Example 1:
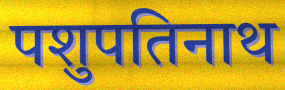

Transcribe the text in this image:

पशुपतिनाथ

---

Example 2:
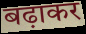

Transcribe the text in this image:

बढ़ाकर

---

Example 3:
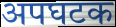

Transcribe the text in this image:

अपघटक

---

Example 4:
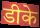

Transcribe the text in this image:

डीके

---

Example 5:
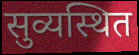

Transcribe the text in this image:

सुव्यस्थित